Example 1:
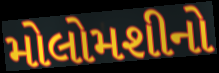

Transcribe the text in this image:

મોલોમશીનો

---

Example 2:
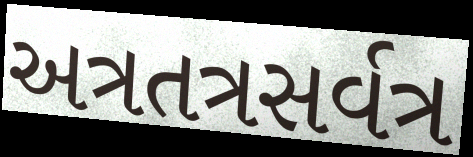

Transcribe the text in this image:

અત્રતત્રસર્વત્ર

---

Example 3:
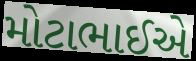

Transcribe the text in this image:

મોટાભાઈએ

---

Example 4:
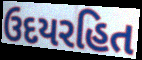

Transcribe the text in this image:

ઉદયરહિત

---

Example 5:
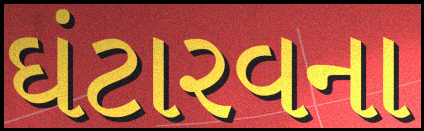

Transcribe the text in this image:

ઘંટારવના